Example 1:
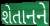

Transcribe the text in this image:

શેતાનને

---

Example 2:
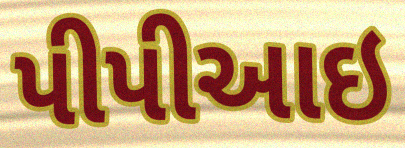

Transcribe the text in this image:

પીપીઆઇ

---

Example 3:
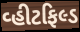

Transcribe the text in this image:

વ્હીટફિલ્ડ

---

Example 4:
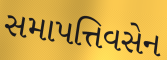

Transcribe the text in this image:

સમાપત્તિવસેન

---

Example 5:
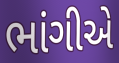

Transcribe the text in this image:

ભાંગીએ